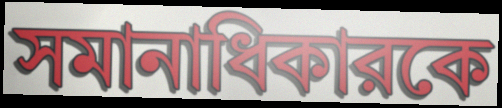
সমানাধিকারকে